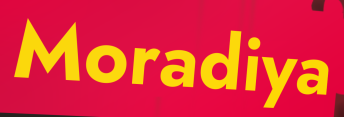
Moradiya